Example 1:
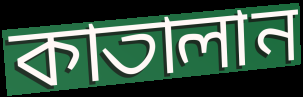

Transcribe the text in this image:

কাতালান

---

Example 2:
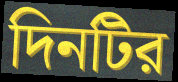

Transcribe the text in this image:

দিনটির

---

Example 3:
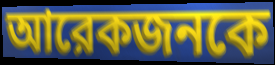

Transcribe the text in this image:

আরেকজনকে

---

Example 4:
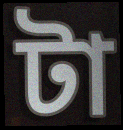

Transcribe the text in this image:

টা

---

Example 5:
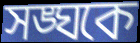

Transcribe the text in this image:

সঙ্ঘকে